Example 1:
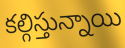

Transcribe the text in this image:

కల్గిస్తున్నాయి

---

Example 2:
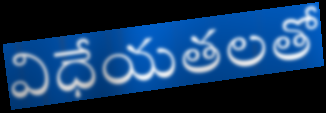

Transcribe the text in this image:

విధేయతలతో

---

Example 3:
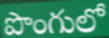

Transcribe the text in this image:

పొంగులో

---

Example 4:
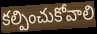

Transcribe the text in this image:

కల్పించుకోవాలి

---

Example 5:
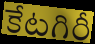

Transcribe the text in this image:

కేటగిరీ